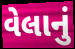
વેલાનું